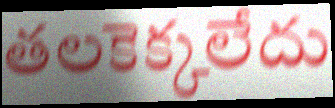
తలకెక్కలేదు